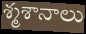
శ్మశానాలు